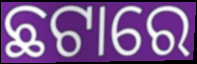
ଛଟାରେ